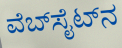
ವೆಬ್‍ಸೈಟ್‍ನ